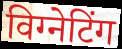
विग्नेटिंग